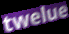
twelue